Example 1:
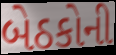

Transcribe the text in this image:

બેઠકોની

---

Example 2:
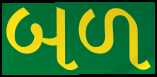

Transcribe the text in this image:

બળ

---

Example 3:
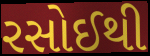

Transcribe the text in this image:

રસોઈથી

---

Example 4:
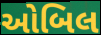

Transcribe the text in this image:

ઓબિલ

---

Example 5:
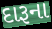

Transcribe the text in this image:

દારૂના